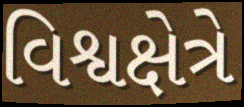
વિશ્વક્ષેત્રે